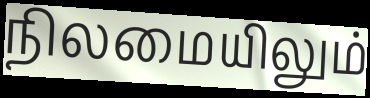
நிலமையிலும்